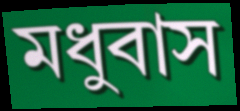
মধুবাস